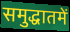
समुद्धातमें